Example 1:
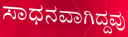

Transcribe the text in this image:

ಸಾಧನವಾಗಿದ್ದವು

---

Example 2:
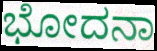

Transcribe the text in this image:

ಭೋದನಾ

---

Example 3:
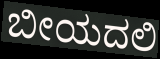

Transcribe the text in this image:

ಬೀಯದಲಿ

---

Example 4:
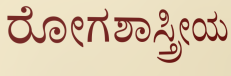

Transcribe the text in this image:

ರೋಗಶಾಸ್ತ್ರೀಯ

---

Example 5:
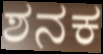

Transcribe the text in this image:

ಶನಕ